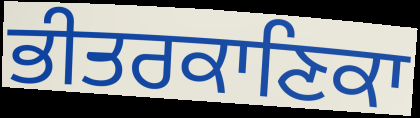
ਭੀਤਰਕਾਣਿਕਾ